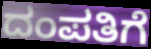
ದಂಪತಿಗೆ